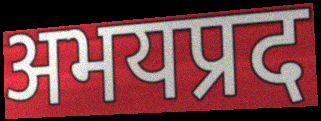
अभयप्रद